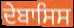
ਦੇਬਾਸਿਸ